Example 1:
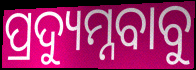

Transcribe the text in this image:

ପ୍ରଦ୍ୟୁମ୍ନବାବୁ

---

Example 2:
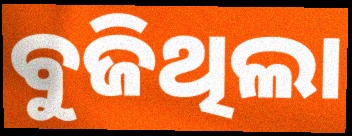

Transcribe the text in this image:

ବୁଜିଥିଲା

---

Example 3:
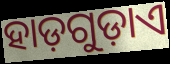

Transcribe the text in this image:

ହାଡ଼ଗୁଡ଼ାଏ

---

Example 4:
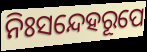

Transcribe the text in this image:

ନିଃସନ୍ଦେହରୂପେ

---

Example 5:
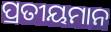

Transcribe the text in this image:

ପ୍ରତୀୟମାନ